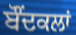
ਬੌਂਦਕਲਾਂ